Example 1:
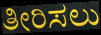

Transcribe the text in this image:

ತೀರಿಸಲು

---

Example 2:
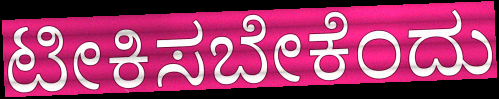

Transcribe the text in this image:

ಟೀಕಿಸಬೇಕೆಂದು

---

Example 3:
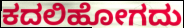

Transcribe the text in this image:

ಕದಲಿಹೋಗದು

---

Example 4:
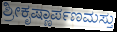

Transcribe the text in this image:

ಶ್ರೀಕೃಷ್ಣಾರ್ಪಣಮಸ್ತು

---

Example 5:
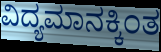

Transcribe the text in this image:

ವಿದ್ಯಮಾನಕ್ಕಿಂತ